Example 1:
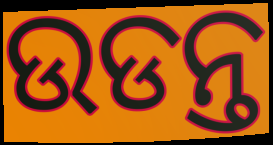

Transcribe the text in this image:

ଉଡନ୍ତ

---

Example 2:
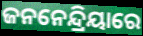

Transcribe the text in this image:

ଜନନେନ୍ଦ୍ରିୟାରେ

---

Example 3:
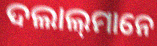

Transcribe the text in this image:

ଦଲାଲ୍‍ମାନେ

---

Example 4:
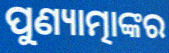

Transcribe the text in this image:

ପୁଣ୍ୟାତ୍ମାଙ୍କର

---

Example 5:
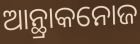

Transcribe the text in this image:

ଆନ୍ଥ୍ରାକନୋଜ